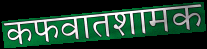
कफवातशामक